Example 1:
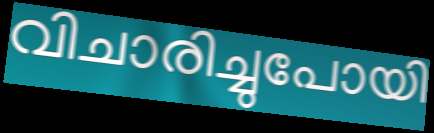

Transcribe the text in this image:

വിചാരിച്ചുപോയി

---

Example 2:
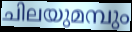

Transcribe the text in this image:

ചിലയുമമ്പും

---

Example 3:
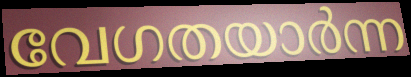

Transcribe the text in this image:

വേഗതയാർന്ന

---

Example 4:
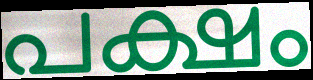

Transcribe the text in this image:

പക്ഷം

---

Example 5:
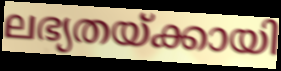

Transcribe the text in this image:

ലഭ്യതയ്ക്കായി